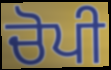
ਚੋਪੀ